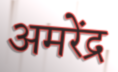
अमरेंद्र